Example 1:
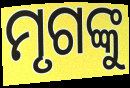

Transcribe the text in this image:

ମୃଗଙ୍କୁ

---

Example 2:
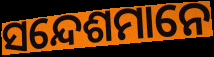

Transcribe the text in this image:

ସନ୍ଦେଶମାନେ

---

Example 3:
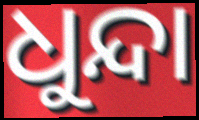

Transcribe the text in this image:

ଧୁନ୍ଦା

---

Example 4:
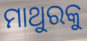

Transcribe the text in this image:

ମାଥୁରକୁ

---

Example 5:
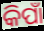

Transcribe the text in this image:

କିପାଁ